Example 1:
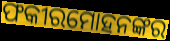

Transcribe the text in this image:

ଫକୀରମୋହନଙ୍କର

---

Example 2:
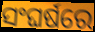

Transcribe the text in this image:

ସଂଘର୍ଷରେ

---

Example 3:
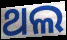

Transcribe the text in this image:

ଥଲ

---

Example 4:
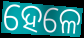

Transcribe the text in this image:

ହେଳେ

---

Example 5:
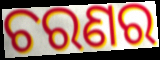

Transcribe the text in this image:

ଚରଣର